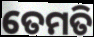
ତେମତି